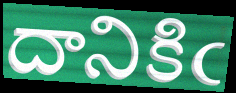
దానికిఁ